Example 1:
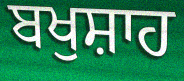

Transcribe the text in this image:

ਬਖੁਸ਼ਾਹ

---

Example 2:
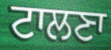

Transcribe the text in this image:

ਟਾਲਣਾ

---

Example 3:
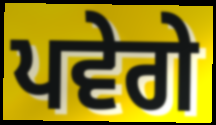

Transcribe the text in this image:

ਪਵੇਗੇ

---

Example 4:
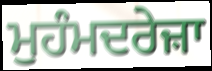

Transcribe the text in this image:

ਮੁਹੰਮਦਰੇਜ਼ਾ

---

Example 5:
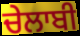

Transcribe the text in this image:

ਚੇਲਾਬੀ